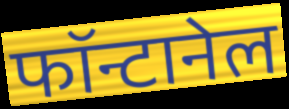
फॉन्टानेल